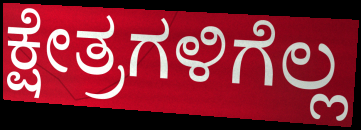
ಕ್ಷೇತ್ರಗಳಿಗೆಲ್ಲ